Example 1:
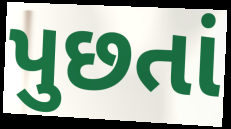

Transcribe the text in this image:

પુછતાં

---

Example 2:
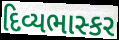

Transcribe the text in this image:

દિવ્યભાસ્કર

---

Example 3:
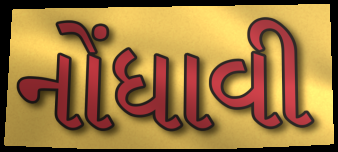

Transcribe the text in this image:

નોંધાવી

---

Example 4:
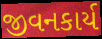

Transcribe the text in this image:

જીવનકાર્ય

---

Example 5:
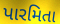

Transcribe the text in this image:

પારમિતા